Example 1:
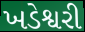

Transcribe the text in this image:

ખડેશ્વરી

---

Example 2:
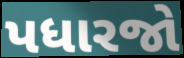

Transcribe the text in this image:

પધારજો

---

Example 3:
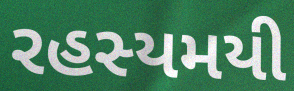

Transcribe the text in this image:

રહસ્યમયી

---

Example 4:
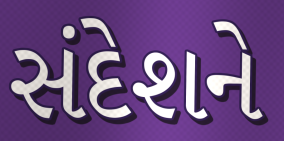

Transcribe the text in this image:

સંદેશને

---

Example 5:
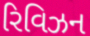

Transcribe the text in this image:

રિવિઝન